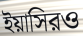
ইয়াসিরও